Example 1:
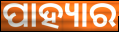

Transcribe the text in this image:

ପାହ୍ୟାର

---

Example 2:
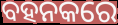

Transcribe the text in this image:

ବହନକରେ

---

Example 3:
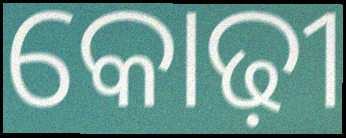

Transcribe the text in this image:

କୋଢ଼ୀ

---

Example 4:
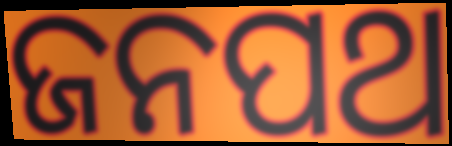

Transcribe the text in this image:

ଜନପଥ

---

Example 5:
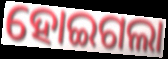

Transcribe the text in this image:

ହୋଇଗଲା